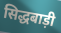
सिद्धबाड़ी